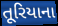
તૂરિયાના